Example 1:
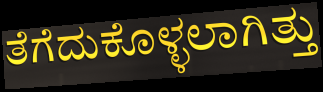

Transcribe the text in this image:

ತೆಗೆದುಕೊಳ್ಳಲಾಗಿತ್ತು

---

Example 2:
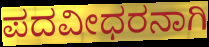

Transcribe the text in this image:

ಪದವೀಧರನಾಗಿ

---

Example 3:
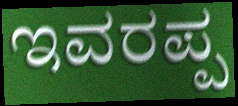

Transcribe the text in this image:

ಇವರಪ್ಪ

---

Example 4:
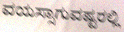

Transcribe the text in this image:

ವಯಸ್ಸಾಗುವಷ್ಟರಲ್ಲಿ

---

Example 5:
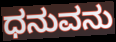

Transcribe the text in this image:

ಧನುವನು